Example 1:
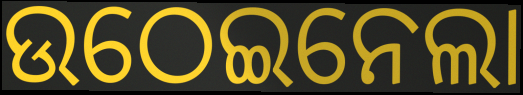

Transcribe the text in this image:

ଉଠେଇନେଲା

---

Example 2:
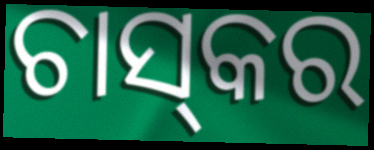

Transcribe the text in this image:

ଚାସ୍‌କର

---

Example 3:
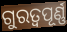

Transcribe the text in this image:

ଗୁରତ୍ୱପୂର୍ଣ୍ଣ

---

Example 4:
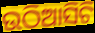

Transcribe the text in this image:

ଉଠିଆସିଚି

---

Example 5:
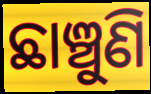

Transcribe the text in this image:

ଛାଞ୍ଚୁଣି